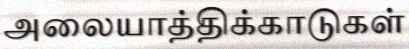
அலையாத்திக்காடுகள்